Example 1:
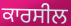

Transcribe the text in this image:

ਕਾਰਸੀਲ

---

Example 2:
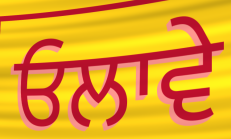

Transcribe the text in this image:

ਓਲਾਵੇ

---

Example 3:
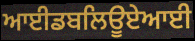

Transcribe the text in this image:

ਆਈਡਬਲਿਊਏਆਈ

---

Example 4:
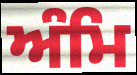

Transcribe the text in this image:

ਅੰਮਿ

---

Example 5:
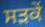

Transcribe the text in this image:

ਸੜਕੇਂ